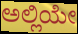
ಅಲ್ಲಿಯೇ